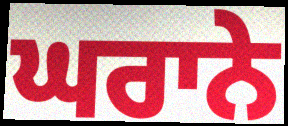
ਘਰਾਨੇ